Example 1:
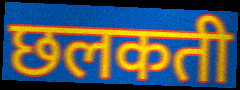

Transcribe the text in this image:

छलकती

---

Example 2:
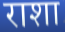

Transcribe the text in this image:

राशा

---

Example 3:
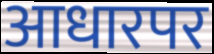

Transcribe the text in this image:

आधारपर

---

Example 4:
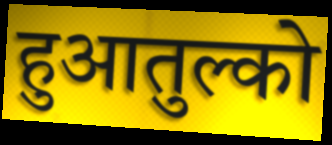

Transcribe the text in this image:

हुआतुल्को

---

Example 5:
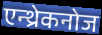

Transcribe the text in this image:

एन्थ्रेकनोज